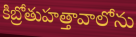
కిబ్రోతుహత్తావాలోను